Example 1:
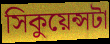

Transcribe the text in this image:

সিকুয়েন্সটা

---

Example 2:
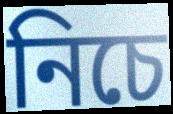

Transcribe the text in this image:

নিচে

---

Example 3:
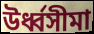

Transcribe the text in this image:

উর্ধ্বসীমা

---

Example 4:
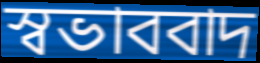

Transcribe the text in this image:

স্বভাববাদ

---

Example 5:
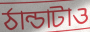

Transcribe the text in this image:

ঠান্ডাটাও